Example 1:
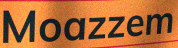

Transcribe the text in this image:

Moazzem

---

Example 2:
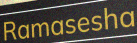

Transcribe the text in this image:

Ramasesha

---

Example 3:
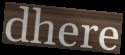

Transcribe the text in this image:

dhere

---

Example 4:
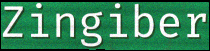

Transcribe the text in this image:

Zingiber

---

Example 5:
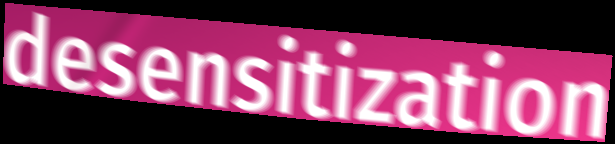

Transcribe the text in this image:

desensitization